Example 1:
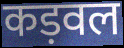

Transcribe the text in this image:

कड़वल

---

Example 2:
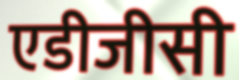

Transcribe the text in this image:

एडीजीसी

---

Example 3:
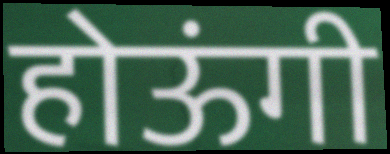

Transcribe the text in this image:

होऊंगी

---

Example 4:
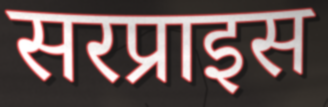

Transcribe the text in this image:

सरप्राइस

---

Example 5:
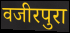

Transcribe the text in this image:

वजीरपुरा